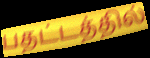
பதட்டத்தில்